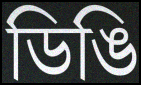
ডিঙি